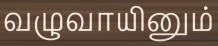
வழுவாயினும்